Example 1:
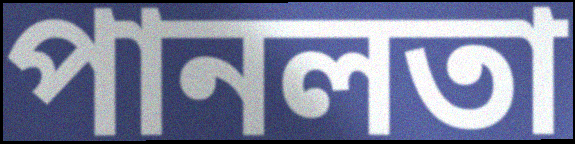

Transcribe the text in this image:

পানলতা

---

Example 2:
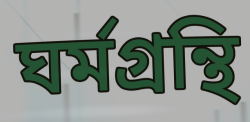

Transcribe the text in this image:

ঘর্মগ্রন্থি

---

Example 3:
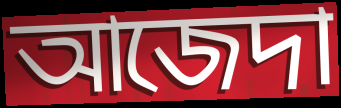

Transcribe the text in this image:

আজেদা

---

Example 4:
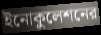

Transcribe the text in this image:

ইনোকুলেশনের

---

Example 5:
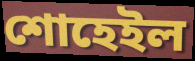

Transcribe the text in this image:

শোহেইল